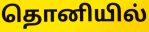
தொனியில்